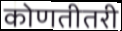
कोणतीतरी